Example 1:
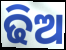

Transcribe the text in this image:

ଢିଅ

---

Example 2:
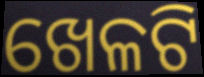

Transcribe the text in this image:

ଖେଳଟି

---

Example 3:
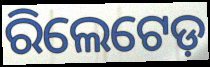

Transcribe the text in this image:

ରିଲେଟେଡ଼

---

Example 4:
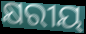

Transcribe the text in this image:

କ୍ଷରୀୟ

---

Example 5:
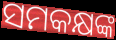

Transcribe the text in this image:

ସମକକ୍ଷଙ୍କ